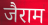
जैराम